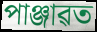
পাঞ্জাৱত